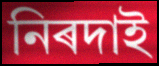
নিৰদাই